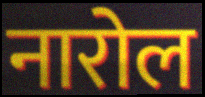
नारोल